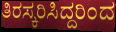
ತಿರಸ್ಕರಿಸಿದ್ದರಿಂದ